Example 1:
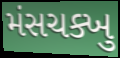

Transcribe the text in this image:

મંસચક્ખુ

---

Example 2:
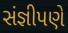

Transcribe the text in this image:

સંજ્ઞીપણે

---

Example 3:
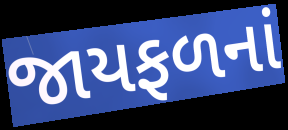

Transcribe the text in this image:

જાયફળનાં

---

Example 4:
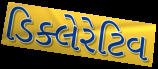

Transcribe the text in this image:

ડિક્લેરેટિવ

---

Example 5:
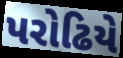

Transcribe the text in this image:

પરોઢિયે